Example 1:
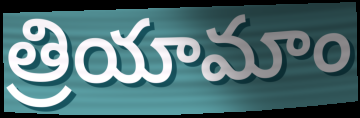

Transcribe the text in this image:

త్రియామాం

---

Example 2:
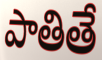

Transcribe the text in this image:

పాతితే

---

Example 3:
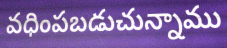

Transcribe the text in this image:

వధింపబడుచున్నాము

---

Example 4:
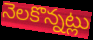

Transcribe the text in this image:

నెలకొన్నట్లు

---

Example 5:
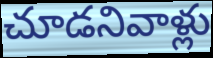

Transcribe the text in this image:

చూడనివాళ్లు